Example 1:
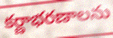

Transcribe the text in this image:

కర్ణాభరణాలను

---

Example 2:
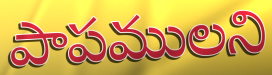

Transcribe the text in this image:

పాపములని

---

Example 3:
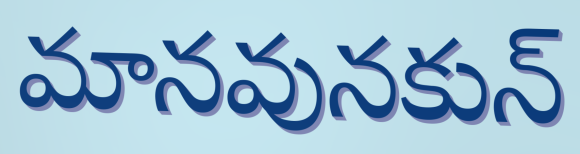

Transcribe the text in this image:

మానవునకున్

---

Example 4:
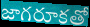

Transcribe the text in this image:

జాగరూకతో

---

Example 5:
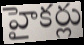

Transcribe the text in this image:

హైకర్లు